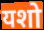
यशो